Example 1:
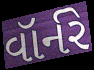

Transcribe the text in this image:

વૉર્નરે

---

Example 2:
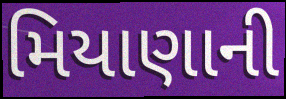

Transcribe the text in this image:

મિયાણાની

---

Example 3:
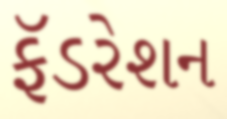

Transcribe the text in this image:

ફૅડરેશન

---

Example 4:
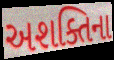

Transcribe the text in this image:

અશક્તિના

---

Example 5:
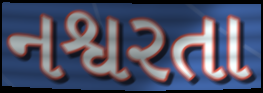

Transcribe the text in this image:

નશ્વરતા